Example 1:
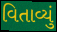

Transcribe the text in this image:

વિતાવ્યું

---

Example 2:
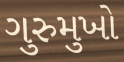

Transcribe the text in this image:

ગુરુમુખો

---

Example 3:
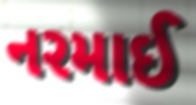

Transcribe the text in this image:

નરમાઈ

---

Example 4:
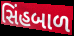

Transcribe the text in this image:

સિંહબાળ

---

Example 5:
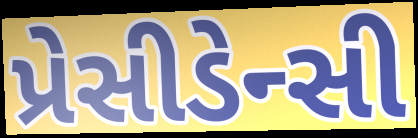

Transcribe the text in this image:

પ્રેસીડેન્સી